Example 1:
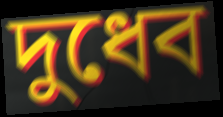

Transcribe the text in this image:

দুধেব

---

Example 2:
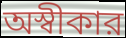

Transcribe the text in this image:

অস্বীকার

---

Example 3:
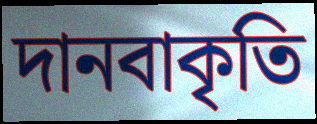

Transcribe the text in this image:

দানবাকৃতি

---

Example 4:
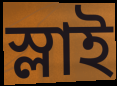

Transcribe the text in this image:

স্লাই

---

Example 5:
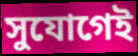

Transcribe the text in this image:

সুযোগেই